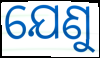
ଯେଣୁ